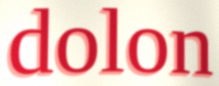
dolon